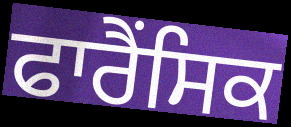
ਫਾਰੈਂਸਿਕ